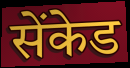
सेंकेड